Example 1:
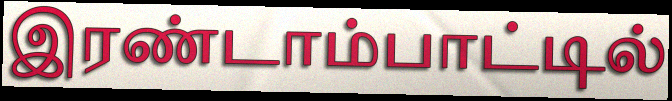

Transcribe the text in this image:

இரண்டாம்பாட்டில்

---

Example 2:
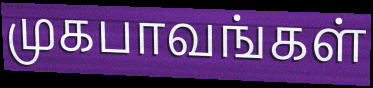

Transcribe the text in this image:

முகபாவங்கள்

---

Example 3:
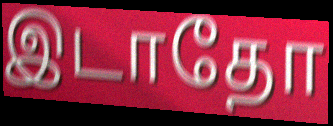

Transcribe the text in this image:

இடாதோ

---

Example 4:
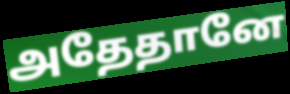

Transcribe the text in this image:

அதேதானே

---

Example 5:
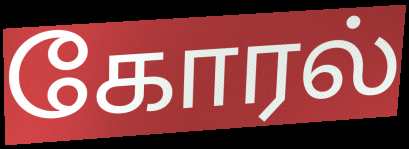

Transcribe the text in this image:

கோரல்